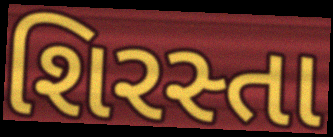
શિરસ્તા